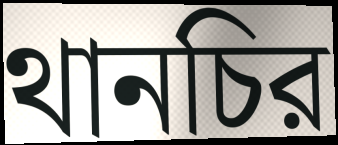
থানচির